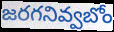
జరగనివ్వబోం